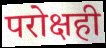
परोक्षही